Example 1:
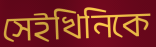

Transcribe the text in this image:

সেইখিনিকে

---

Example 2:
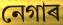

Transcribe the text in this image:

নেগাৰ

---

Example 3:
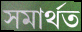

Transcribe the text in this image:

সমাৰ্থত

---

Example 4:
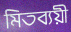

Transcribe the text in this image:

মিতব্যয়ী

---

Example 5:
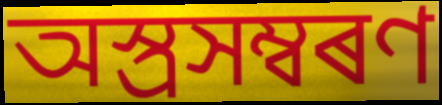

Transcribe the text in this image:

অস্ত্ৰসম্বৰণ